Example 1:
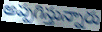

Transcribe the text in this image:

అప్పగిస్తున్నారు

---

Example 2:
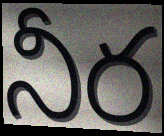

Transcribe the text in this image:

నీర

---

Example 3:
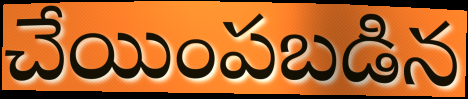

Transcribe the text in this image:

చేయింపబడిన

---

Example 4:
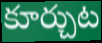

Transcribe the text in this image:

కూర్చుట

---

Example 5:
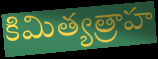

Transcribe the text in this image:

కిమిత్యత్రాహ